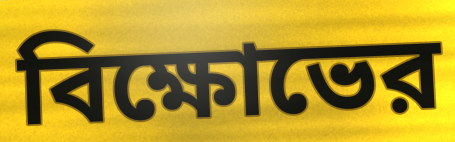
বিক্ষোভের